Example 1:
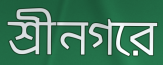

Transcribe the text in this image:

শ্রীনগরে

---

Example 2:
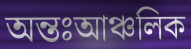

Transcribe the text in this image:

অন্তঃআঞ্চলিক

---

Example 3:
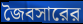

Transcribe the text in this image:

জৈবসারের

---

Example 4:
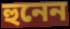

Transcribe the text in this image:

হুনেন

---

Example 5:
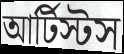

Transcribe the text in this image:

আর্টিস্টস